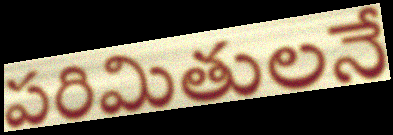
పరిమితులనే